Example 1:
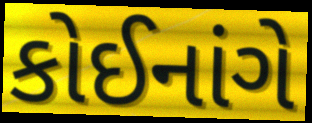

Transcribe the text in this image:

કોઈનાંગે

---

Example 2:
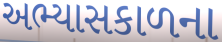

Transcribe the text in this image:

અભ્યાસકાળના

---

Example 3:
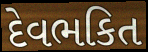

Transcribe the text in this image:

દેવભકિત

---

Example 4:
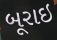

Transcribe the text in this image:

બૂરાઇ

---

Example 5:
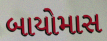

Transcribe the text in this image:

બાયોમાસ